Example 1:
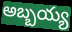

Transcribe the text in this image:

అబ్బయ్య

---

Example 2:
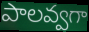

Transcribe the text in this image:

పాలవ్వగా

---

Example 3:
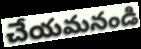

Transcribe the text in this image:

చేయమనండి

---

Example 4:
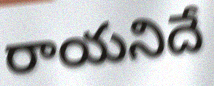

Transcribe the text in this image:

రాయనిదే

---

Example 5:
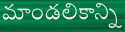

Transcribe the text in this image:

మాండలికాన్ని